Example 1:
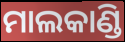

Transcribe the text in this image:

ମାଲକାଣ୍ଡି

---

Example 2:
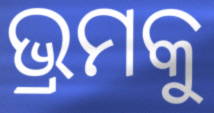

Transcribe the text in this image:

ଭ୍ରମକୁ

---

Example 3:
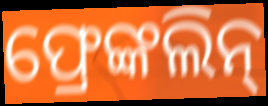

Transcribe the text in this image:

ଫ୍ରେଙ୍କଲିନ୍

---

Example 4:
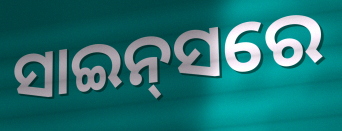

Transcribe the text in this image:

ସାଇନ୍‌ସରେ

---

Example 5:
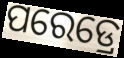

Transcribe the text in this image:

ପରେଡ୍ରେ